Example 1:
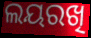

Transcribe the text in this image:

ଲୟରଖି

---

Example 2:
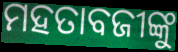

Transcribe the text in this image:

ମହତାବଜୀଙ୍କୁ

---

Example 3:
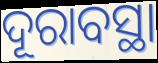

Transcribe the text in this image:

ଦୂରାବସ୍ଥା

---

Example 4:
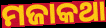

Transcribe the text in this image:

ମଜାକଥା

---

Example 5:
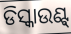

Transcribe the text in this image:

ଡିସ୍କାଉଣ୍ଟ୍